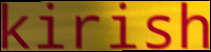
kirish